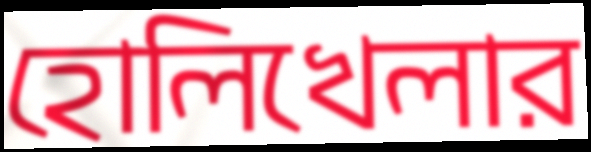
হোলিখেলার